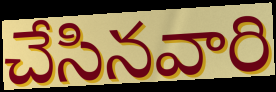
చేసినవారి